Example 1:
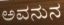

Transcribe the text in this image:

ಅವನುನ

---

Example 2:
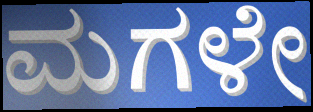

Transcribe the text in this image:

ಮಗಳೇ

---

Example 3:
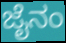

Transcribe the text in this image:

ಜೈನಂ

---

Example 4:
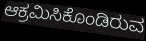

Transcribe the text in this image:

ಆಕ್ರಮಿಸಿಕೊಂಡಿರುವ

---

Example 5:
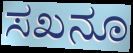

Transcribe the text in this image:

ಸಖನೂ